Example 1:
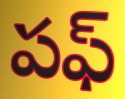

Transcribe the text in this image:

పఫ్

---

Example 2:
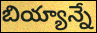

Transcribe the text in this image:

బియ్యాన్నే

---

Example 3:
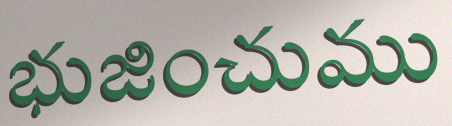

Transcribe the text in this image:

భుజించుము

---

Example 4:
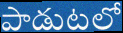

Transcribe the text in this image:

పాడుటలో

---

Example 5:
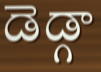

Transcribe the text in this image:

డెడ్గా